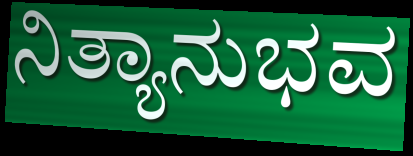
ನಿತ್ಯಾನುಭವ